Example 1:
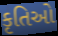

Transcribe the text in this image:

કૃતિઓ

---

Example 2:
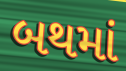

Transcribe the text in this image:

બથમાં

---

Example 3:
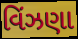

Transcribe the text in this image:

વિંઝણા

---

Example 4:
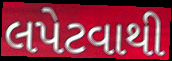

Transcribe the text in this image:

લપેટવાથી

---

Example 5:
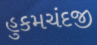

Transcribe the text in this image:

હુકમચંદજી